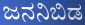
ಜನನಿಬಿಡ